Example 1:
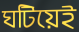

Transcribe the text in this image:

ঘটিয়েই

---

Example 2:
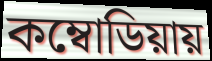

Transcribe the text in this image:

কম্বোডিয়ায়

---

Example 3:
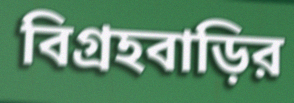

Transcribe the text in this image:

বিগ্রহবাড়ির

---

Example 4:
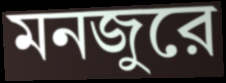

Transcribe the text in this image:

মনজুরে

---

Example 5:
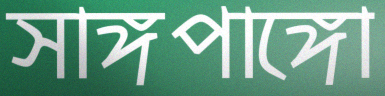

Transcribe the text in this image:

সাঙ্গপাঙ্গো